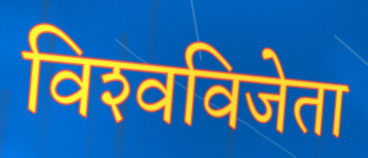
विश्वविजेता